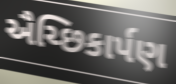
ઐચ્છિકાર્પણ